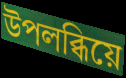
উপলব্ধিয়ে